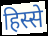
हिस्से